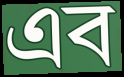
এব